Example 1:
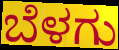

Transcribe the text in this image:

ಬೆಳಗು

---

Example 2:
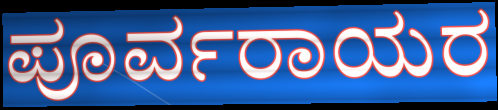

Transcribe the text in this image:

ಪೂರ್ವರಾಯರ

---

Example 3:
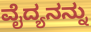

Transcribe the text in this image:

ವೈದ್ಯನನ್ನು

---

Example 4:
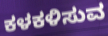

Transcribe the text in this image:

ಕಳಕಳಿಸುವ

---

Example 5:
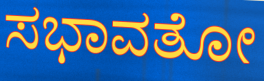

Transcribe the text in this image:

ಸಭಾವತೋ